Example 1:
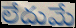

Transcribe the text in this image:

లేదుమే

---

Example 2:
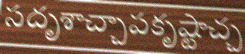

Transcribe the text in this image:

సదృశాచ్చాపకృష్టాచ్చ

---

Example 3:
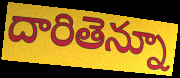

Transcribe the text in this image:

దారితెన్నూ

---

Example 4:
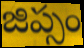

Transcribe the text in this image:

జిప్సం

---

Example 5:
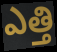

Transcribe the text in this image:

ఎత్తి